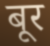
बूर